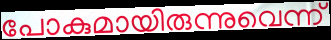
പോകുമായിരുന്നുവെന്ന്